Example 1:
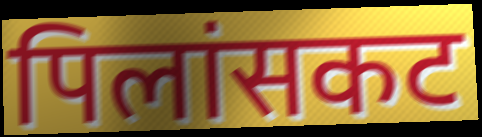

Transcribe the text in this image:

पिलांसकट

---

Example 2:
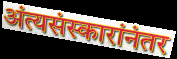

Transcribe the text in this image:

अंत्यसंस्कारांनंतर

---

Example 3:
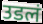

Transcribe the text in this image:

उडलं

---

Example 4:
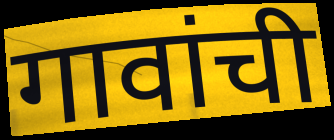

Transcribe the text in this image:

गावांची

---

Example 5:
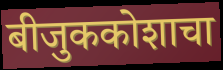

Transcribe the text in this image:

बीजुककोशाचा